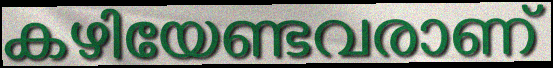
കഴിയേണ്ടവരാണ്